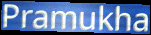
Pramukha